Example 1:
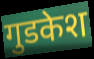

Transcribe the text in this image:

गुडकेश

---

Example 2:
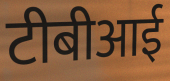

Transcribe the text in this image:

टीबीआई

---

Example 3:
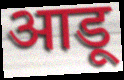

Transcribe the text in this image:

आडू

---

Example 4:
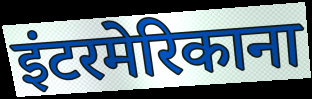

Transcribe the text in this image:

इंटरमेरिकाना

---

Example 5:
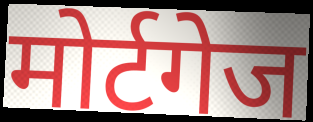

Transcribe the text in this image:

मोर्टगेज